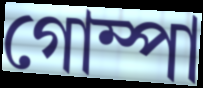
গোম্পা